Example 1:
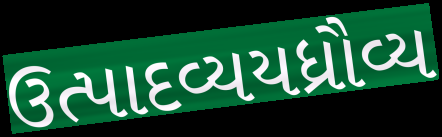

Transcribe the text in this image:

ઉત્પાદવ્યયધ્રૌવ્ય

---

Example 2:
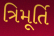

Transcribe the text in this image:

ત્રિમૂર્તિ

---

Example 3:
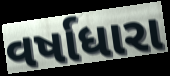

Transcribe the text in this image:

વર્ષાધારા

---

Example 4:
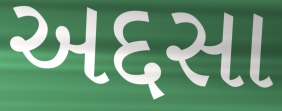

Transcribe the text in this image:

અદ્દસા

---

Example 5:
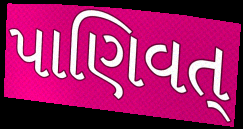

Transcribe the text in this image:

પાણિવત્